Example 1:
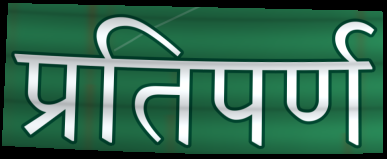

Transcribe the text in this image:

प्रतिपर्ण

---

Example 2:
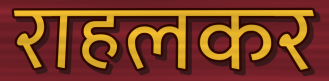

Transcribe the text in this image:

राहलकर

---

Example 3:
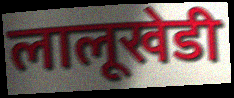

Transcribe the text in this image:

लालूखेडी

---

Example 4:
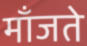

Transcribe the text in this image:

माँजते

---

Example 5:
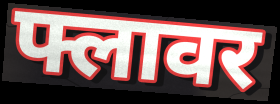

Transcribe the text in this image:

फ्लावर